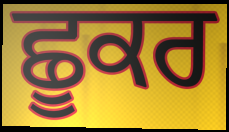
ਛੂਕਰ